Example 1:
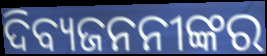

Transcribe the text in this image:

ଦିବ୍ୟଜନନୀଙ୍କର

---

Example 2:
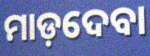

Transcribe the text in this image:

ମାଡ଼ଦେବା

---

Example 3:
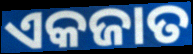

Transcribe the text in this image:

ଏକଜାତ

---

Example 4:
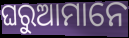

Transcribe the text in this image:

ଘରୁଆମାନେ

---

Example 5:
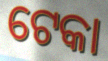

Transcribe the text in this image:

ଟେକା